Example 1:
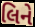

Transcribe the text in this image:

લિને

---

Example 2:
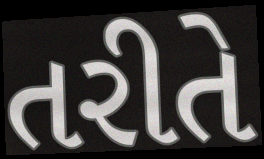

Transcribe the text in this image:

તરીતે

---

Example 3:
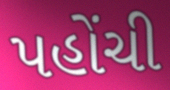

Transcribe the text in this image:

પહોંચી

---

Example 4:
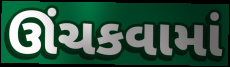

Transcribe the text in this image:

ઊંચકવામાં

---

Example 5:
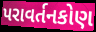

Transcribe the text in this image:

પરાવર્તનકોણ